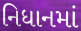
નિધાનમાં